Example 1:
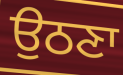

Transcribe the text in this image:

ਉਠਣਾ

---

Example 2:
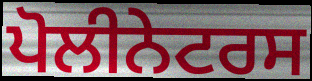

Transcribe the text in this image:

ਪੋਲੀਨੇਟਰਸ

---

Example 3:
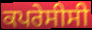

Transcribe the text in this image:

ਕਪਰੇਸੀਸੀ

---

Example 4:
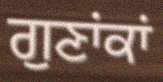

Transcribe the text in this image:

ਗੁਣਾਂਕਾਂ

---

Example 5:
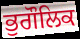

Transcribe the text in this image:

ਭੁਗੌਲਿਕ